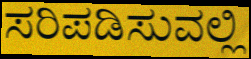
ಸರಿಪಡಿಸುವಲ್ಲಿ